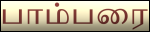
பாம்பரை